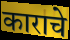
काराचे